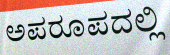
ಅಪರೂಪದಲ್ಲಿ